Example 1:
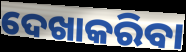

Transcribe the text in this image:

ଦେଖାକରିବା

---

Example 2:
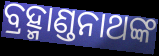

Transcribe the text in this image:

ବ୍ରହ୍ମାଣ୍ଡନାଥଙ୍କ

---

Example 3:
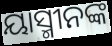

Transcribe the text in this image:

ୟାସ୍ମୀନଙ୍କ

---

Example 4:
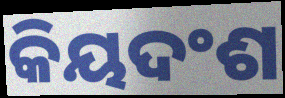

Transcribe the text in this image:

କିୟଦଂଶ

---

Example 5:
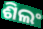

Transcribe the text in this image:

ଶିଲଂ